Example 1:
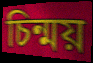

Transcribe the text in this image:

চিন্ময়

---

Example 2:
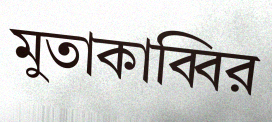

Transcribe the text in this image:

মুতাকাব্বির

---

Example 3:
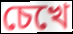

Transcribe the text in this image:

চেখে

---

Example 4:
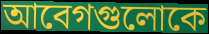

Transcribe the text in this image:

আবেগগুলোকে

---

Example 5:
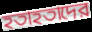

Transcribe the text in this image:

হতাহতাদের